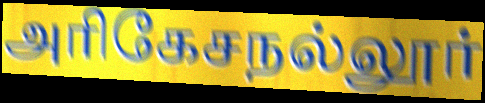
அரிகேசநல்லூர்